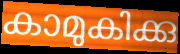
കാമുകിക്കു